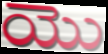
యొ